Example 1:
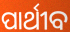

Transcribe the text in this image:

ପାର୍ଥୀବ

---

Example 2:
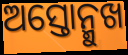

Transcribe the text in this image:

ଅସ୍ତୋନ୍ମୁଖ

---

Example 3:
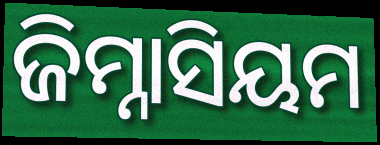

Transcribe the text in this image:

ଜିମ୍ନାସିୟମ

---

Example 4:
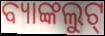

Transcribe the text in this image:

ବ୍ୟାଙ୍କଲୁଟ୍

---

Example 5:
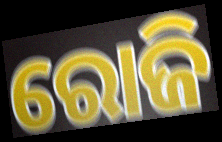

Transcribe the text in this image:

ରୋଜି